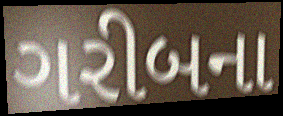
ગરીબના